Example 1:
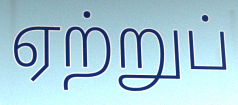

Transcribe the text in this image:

ஏற்றுப்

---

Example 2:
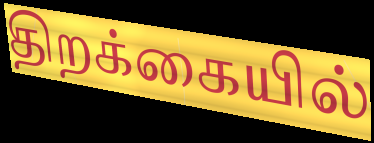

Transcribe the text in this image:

திறக்கையில்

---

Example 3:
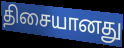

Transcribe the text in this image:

திசையானது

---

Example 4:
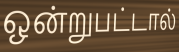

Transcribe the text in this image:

ஒன்றுபட்டால்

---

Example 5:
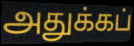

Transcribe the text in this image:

அதுக்கப்